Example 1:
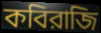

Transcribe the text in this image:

কবিরাজি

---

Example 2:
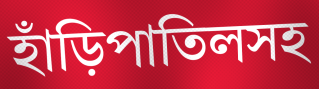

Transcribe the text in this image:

হাঁড়িপাতিলসহ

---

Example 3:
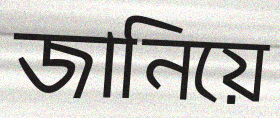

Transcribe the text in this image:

জানিয়ে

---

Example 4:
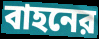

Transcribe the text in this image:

বাহনের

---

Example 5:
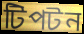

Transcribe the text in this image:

টিপটন